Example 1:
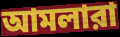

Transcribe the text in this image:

আমলারা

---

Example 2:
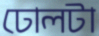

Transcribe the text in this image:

ঢোলটা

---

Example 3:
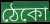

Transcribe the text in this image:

ঠেকো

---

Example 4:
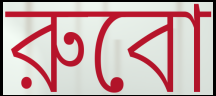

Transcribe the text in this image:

রুবো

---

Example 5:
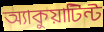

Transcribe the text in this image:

অ্যাকুয়াটিন্ট